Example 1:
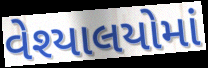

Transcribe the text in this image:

વેશ્યાલયોમાં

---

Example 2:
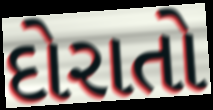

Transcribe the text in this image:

દોરાતો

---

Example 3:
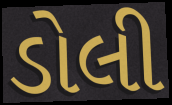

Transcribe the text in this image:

ડોલી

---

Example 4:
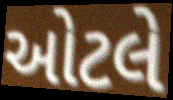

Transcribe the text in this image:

ઓટલે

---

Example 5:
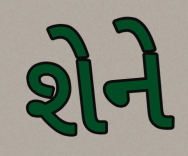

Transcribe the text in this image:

શેને